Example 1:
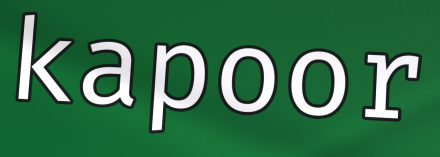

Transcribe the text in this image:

kapoor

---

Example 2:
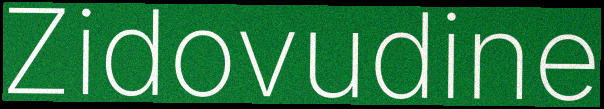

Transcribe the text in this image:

Zidovudine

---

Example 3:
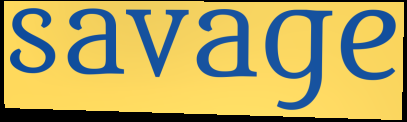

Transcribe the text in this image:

savage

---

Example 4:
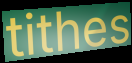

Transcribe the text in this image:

tithes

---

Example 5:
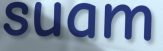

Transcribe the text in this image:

suam